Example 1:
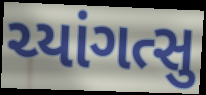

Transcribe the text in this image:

ચ્યાંગત્સુ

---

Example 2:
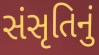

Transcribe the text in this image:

સંસૃતિનું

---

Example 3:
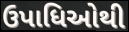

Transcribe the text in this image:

ઉપાધિઓથી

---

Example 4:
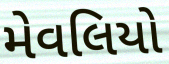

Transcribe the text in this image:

મેવલિયો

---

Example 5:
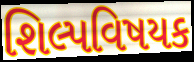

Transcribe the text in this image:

શિલ્પવિષયક